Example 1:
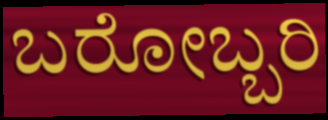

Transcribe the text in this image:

ಬರೋಬ್ಬರಿ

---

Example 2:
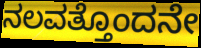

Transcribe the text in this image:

ನಲವತ್ತೊಂದನೇ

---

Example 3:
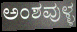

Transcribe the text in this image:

ಅಂಶವುಳ್ಳ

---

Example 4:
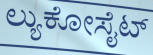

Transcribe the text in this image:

ಲ್ಯುಕೋಸೈಟ್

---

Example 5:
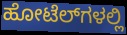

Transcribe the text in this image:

ಹೋಟೆಲ್‌ಗಳಲ್ಲಿ